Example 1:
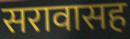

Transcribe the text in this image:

सरावासह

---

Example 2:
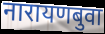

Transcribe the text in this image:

नारायणबुवा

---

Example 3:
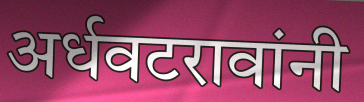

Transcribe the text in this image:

अर्धवटरावांनी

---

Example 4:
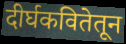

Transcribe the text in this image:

दीर्घकवितेतून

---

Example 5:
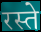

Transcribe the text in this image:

रस्ते